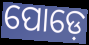
ପୋଡ଼େ